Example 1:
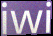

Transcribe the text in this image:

iwi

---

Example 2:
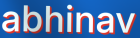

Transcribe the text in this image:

abhinav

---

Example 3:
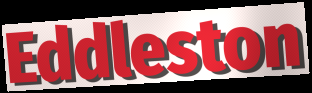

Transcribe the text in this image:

Eddleston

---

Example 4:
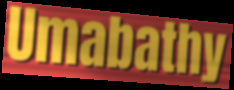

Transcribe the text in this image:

Umabathy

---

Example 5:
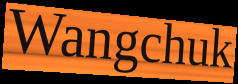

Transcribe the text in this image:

Wangchuk